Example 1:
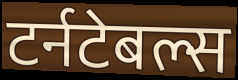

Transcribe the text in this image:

टर्नटेबल्स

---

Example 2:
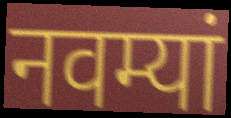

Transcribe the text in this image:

नवम्यां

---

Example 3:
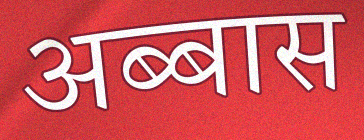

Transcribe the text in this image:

अब्बास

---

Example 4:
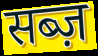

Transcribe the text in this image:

सब्ज़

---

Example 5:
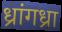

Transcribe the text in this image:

ध्रांगध्रा